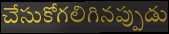
చేసుకోగలిగినప్పుడు